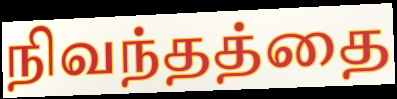
நிவந்தத்தை